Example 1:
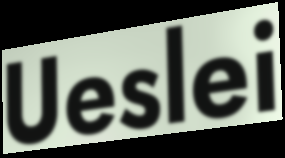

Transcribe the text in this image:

Ueslei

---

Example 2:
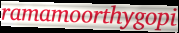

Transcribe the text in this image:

ramamoorthygopi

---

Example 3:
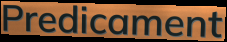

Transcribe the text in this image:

Predicament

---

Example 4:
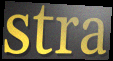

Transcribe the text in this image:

stra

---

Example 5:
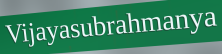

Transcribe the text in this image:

Vijayasubrahmanya